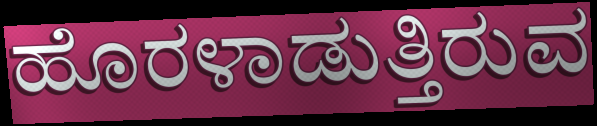
ಹೊರಳಾಡುತ್ತಿರುವ